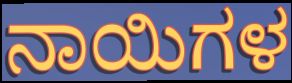
ನಾಯಿಗಳ